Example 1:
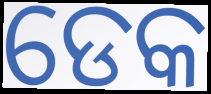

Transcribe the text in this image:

ଡେକ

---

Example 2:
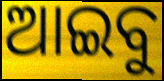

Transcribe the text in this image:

ଆଇବୁ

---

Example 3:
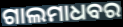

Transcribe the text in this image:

ଗାଲମାଧବର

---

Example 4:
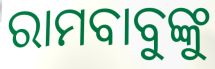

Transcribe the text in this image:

ରାମବାବୁଙ୍କୁ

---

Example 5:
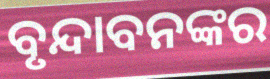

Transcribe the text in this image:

ବୃନ୍ଦାବନଙ୍କର